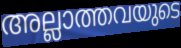
അല്ലാത്തവയുടെ